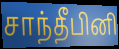
சாந்தீபினி